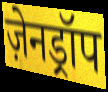
ज़ेनड्रॉप